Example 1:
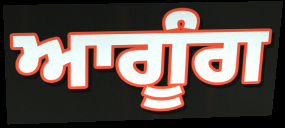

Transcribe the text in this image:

ਆਗੂੰਗ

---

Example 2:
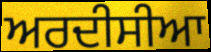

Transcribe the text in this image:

ਅਰਦੀਸੀਆ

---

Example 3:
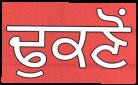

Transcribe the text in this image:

ਢੁਕਣੋਂ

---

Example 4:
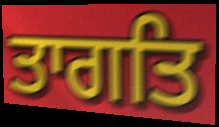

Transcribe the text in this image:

ਤਾਗਤਿ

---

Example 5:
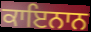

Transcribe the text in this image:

ਕਾਇਨਾਨ